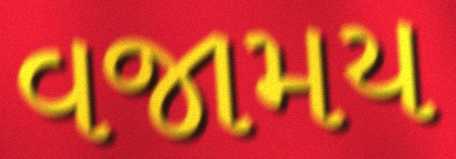
વજામય